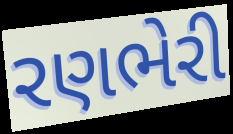
રણભેરી